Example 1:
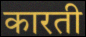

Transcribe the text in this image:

कारती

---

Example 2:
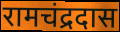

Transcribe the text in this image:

रामचंद्रदास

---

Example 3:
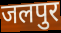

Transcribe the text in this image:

जलपुर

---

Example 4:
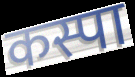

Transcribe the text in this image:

कस्पा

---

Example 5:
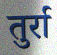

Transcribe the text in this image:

तुर्रा